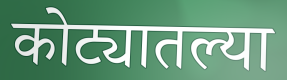
कोट्यातल्या